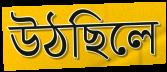
উঠছিলে